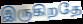
இருகிறதே